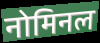
नोमिनल